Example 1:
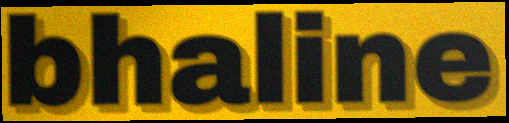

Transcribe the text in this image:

bhaline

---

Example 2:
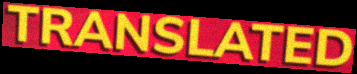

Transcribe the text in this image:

TRANSLATED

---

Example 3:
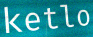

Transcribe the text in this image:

ketlo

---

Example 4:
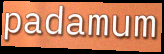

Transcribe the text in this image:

padamum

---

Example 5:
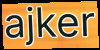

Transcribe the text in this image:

ajker